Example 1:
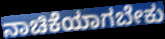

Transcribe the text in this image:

ನಾಚಿಕೆಯಾಗಬೇಕು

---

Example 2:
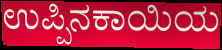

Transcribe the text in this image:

ಉಪ್ಪಿನಕಾಯಿಯ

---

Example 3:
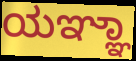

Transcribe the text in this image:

ಯಞ್ಞಾ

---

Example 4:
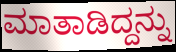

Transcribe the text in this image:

ಮಾತಾಡಿದ್ದನ್ನು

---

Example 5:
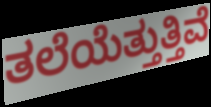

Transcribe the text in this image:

ತಲೆಯೆತ್ತುತ್ತಿವೆ